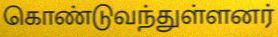
கொண்டுவந்துள்ளனர்